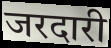
जरदारी